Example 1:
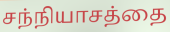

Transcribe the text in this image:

சந்நியாசத்தை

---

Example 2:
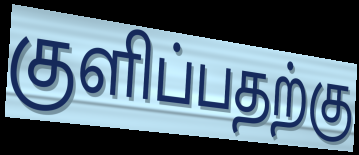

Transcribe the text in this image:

குளிப்பதற்கு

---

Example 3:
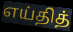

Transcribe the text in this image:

எய்தித்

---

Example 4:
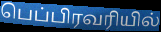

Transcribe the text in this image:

பெப்பிரவரியில்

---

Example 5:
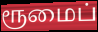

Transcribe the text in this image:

ரூமைப்